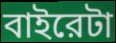
বাইরেটা